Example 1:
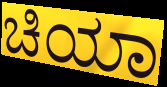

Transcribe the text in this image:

ಚಿಯಾ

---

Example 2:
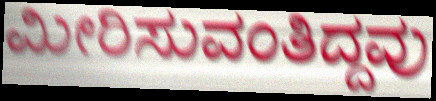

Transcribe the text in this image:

ಮೀರಿಸುವಂತಿದ್ದವು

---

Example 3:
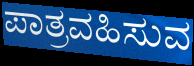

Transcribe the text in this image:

ಪಾತ್ರವಹಿಸುವ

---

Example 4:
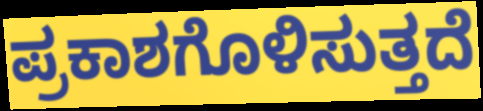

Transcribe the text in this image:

ಪ್ರಕಾಶಗೊಳಿಸುತ್ತದೆ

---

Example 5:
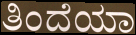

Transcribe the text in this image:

ತಿಂದೆಯಾ